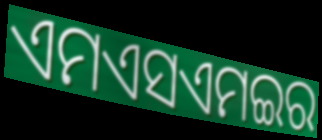
ଏମଏସଏମଇର